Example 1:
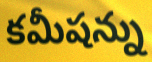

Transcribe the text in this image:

కమీషన్ను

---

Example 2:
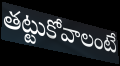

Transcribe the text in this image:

తట్టుకోవాలంటే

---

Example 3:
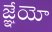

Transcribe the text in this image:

జ్ఞేయో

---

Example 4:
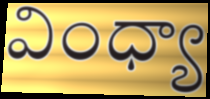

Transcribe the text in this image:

వింధ్యా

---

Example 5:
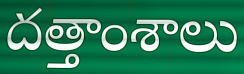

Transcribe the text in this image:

దత్తాంశాలు